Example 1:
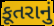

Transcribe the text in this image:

કૂતરાનું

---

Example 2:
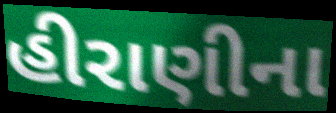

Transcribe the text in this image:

હીરાણીના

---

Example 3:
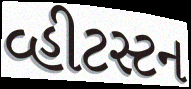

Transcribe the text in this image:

વ્હીટસ્ટન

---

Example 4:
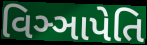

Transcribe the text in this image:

વિઞ્ઞાપેતિ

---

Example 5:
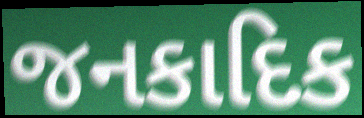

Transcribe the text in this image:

જનકાદિક